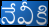
నేవీకి